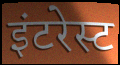
इंटरेस्ट